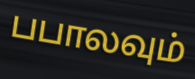
பபாலவும்